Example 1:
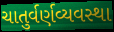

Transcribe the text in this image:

ચાતુર્વર્ણવ્યવસ્થા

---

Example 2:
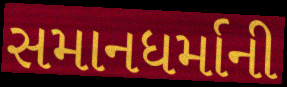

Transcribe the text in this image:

સમાનધર્માની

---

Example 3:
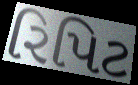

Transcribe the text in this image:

રિપિટ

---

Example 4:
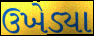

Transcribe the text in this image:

ઉખેડ્યા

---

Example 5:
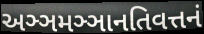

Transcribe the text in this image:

અઞ્ઞમઞ્ઞાનતિવત્તનં